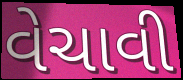
વેચાવી